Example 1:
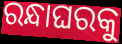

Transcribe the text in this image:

ରନ୍ଧାଘରକୁ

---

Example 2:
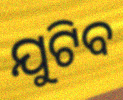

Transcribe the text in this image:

ଯୁଟିବ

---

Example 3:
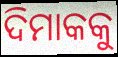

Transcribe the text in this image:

ଦିମାକକୁ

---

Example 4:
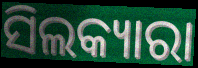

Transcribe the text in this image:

ସିଲକ୍ୟାରା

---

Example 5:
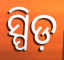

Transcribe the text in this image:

ସ୍ପିଡ଼